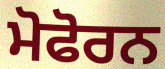
ਮੋਫੋਰਨ